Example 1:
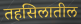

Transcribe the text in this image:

तहसिलातील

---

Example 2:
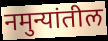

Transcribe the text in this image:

नमुन्यांतील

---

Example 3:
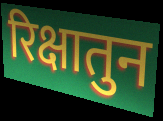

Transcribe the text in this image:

रिक्षातुन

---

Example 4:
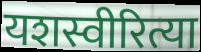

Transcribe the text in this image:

यशस्वीरित्या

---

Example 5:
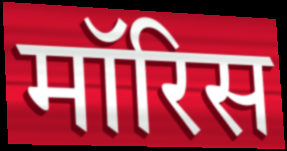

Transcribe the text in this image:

मॉरिस